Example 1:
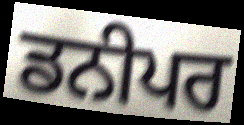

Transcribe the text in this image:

ਡਨੀਪਰ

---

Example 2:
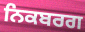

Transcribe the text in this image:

ਨਿਕਬਰਗ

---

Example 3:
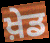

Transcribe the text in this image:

ਖ਼ੇਡ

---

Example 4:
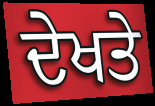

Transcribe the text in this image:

ਦੇਖਤੇ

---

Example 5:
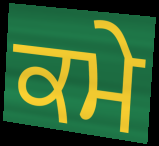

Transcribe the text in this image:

ਕਮੇ